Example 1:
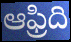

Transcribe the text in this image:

ఆఫ్రిది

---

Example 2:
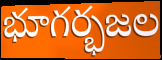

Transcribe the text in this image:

భూగర్భజల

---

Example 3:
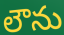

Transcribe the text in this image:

లౌను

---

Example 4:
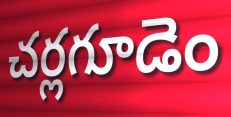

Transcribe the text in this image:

చర్లగూడెం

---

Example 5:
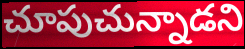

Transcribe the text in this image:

చూపుచున్నాడని